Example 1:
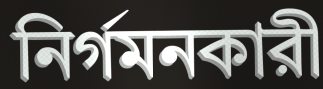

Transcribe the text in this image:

নির্গমনকারী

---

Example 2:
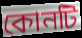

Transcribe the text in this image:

কোনটি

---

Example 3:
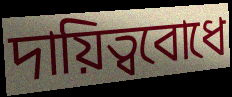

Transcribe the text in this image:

দায়িত্ববোধে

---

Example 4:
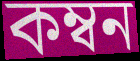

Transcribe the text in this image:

কম্বন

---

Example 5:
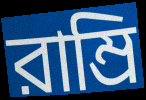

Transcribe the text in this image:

রাম্রি